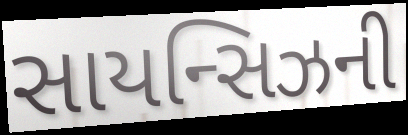
સાયન્સિઝની